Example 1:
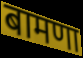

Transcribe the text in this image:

बामणा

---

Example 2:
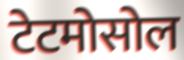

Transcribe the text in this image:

टेटमोसोल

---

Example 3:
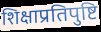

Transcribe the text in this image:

शिक्षाप्रतिपुष्टि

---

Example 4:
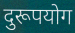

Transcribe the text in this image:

दुरूपयोग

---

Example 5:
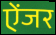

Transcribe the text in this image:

ऐंजर